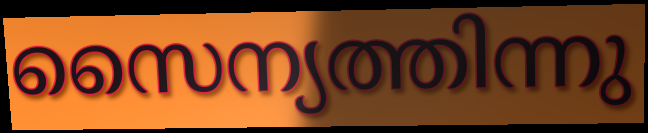
സൈന്യത്തിന്നു